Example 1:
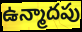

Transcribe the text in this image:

ఉన్మాదపు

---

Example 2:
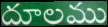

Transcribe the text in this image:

దూలము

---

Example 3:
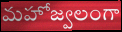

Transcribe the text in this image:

మహోజ్వలంగా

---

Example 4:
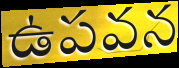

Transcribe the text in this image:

ఉపవన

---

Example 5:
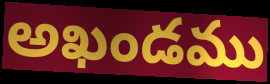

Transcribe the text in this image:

అఖండము